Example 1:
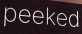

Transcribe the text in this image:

peeked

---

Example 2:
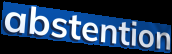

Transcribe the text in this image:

abstention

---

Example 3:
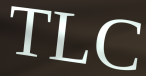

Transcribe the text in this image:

TLC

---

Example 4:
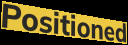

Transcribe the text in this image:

Positioned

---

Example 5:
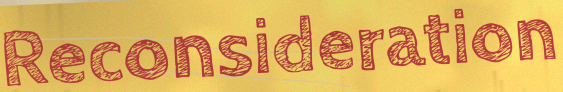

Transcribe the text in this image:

Reconsideration